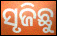
ସୃଜିଛୁ